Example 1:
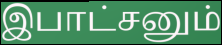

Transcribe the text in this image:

இபாட்சனும்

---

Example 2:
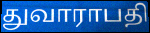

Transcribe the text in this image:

துவாராபதி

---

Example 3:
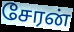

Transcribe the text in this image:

சேரன்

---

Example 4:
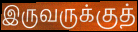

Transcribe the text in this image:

இருவருக்குத்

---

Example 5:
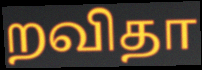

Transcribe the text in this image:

றவிதா